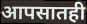
आपसातही